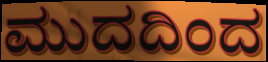
ಮುದದಿಂದ